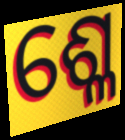
ଶ୍ଳେ